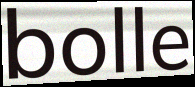
bolle